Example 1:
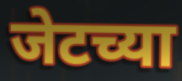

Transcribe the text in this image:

जेटच्या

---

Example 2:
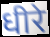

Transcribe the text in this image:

धीरे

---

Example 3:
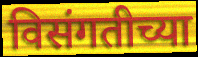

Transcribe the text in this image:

विसंगतीच्या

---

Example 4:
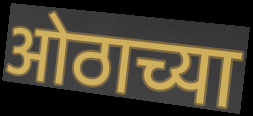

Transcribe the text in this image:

ओठाच्या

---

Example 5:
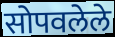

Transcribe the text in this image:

सोपवलेले